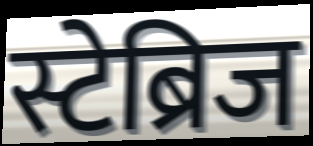
स्टेब्रिज